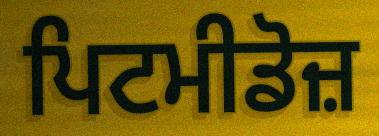
ਪਿਟਮੀਡੋਜ਼